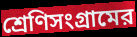
শ্রেণিসংগ্রামের